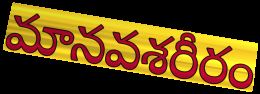
మానవశరీరం